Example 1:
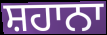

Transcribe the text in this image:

ਸ਼ਹਾਨਾ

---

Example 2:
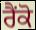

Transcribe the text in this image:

ਰੈਂਕੋ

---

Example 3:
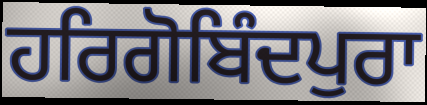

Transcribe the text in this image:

ਹਰਿਗੋਬਿੰਦਪੁਰਾ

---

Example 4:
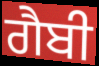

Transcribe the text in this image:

ਗੈਬੀ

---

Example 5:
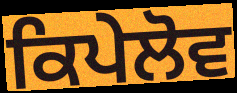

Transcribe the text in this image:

ਕਿਪੇਲੋਵ